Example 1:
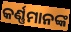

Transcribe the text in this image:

କର୍ଣ୍ଣମାନଙ୍କ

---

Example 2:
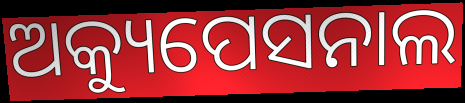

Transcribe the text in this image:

ଅକ୍ୟୁପେସନାଲ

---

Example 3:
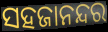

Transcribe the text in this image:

ସହଜାନନ୍ଦର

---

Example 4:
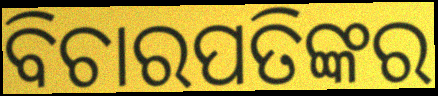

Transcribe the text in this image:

ବିଚାରପତିଙ୍କର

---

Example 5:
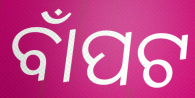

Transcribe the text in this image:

ବାଁପଟ